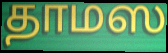
தாமஸ